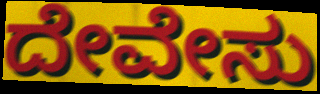
ದೇವೇಸು